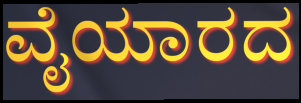
ವೈಯಾರದ